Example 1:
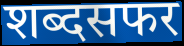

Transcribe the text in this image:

शब्दसफर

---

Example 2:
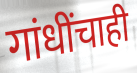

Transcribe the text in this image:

गांधींचाही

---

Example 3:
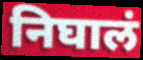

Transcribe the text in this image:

निघालं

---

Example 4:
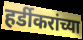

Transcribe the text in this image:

हर्डीकरांच्या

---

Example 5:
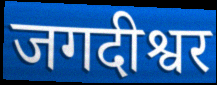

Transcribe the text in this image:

जगदीश्वर